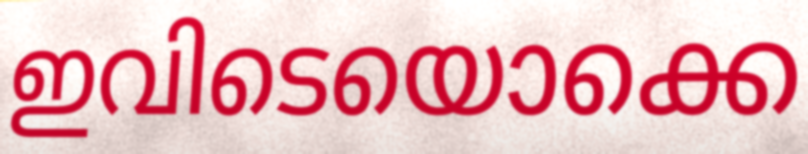
ഇവിടെയൊക്കെ